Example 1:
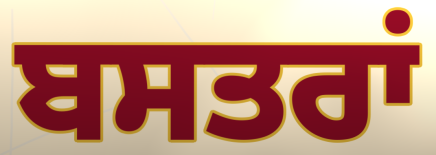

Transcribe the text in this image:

ਬਸਤਰਾਂ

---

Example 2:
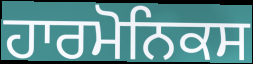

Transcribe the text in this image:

ਹਾਰਮੋਨਿਕਸ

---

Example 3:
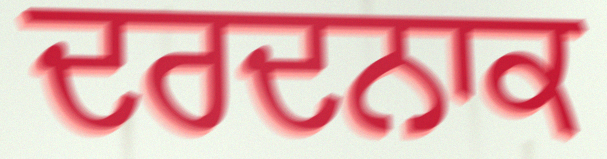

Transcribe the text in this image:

ਦਰਦਨਾਕ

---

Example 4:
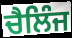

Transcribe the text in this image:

ਚੈਲਿੰਜ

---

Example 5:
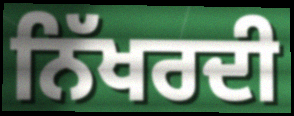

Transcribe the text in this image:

ਨਿੱਖਰਦੀ